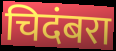
चिदंबरा